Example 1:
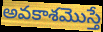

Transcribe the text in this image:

అవకాశమొస్తే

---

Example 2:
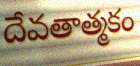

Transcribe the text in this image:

దేవతాత్మకం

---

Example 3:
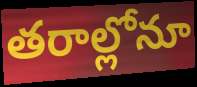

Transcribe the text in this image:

తరాల్లోనూ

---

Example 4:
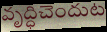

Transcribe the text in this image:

వృద్ధిచెందుట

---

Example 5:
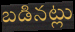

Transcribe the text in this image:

బడినట్లు